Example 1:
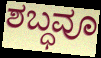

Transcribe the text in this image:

ಶಬ್ಧವೂ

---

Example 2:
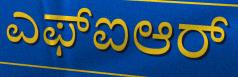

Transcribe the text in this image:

ಎಫ್ಐಆರ್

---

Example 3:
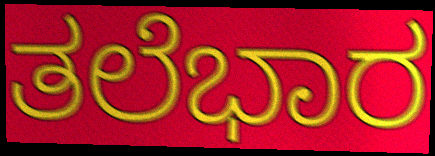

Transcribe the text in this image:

ತಲೆಭಾರ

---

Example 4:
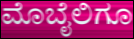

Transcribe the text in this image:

ಮೊಬೈಲಿಗೂ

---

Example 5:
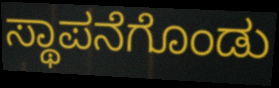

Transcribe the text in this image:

ಸ್ಥಾಪನೆಗೊಂಡು